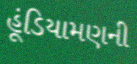
હૂંડિયામણની